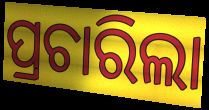
ପ୍ରଚାରିଲା